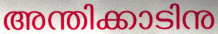
അന്തിക്കാടിനു